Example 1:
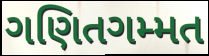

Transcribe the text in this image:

ગણિતગમ્મત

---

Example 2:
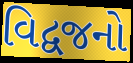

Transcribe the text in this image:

વિદ્વજનો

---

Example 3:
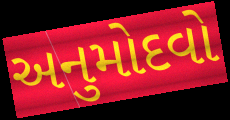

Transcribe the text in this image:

અનુમોદવો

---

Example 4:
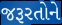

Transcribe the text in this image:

જરૂરતોને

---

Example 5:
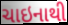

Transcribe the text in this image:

ચાઇનાથી